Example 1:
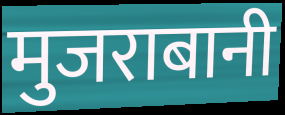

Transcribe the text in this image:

मुजराबानी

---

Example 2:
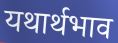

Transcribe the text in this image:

यथार्थभाव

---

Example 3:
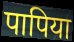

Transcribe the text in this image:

पापिया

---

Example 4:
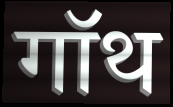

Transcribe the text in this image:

गॉथ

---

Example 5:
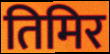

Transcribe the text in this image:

तिमिर